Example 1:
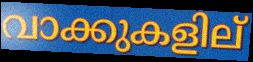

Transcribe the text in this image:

വാക്കുകളില്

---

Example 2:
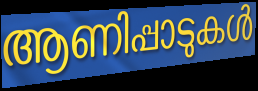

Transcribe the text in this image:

ആണിപ്പാടുകൾ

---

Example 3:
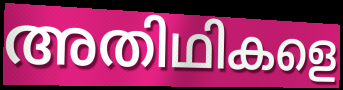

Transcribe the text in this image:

അതിഥികളെ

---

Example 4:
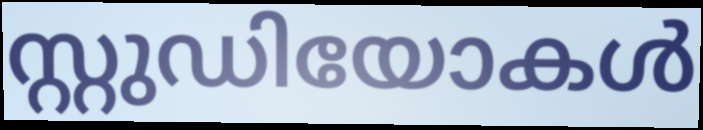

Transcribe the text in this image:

സ്റ്റുഡിയോകൾ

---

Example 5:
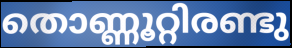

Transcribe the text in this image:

തൊണ്ണൂറ്റിരണ്ടു